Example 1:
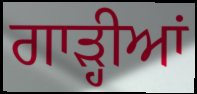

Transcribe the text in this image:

ਗਾੜ੍ਹੀਆਂ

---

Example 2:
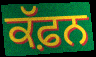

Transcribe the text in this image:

ਕੱਫ਼ਨ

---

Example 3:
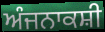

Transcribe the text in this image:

ਅੰਜਨਾਕਸ਼ੀ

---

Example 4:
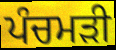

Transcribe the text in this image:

ਪੰਚਮੜੀ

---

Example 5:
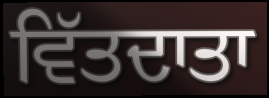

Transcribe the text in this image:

ਵਿੱਤਦਾਤਾ